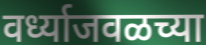
वर्ध्याजवळच्या